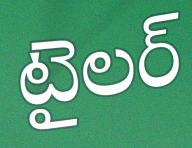
టైలర్